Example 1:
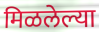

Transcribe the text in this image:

मिळलेल्या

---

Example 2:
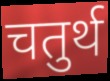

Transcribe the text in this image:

चतुर्थ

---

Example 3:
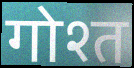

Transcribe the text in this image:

गोश्त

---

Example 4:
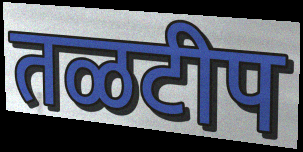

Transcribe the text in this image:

तळटीप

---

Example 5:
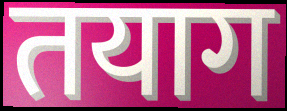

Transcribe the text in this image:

तयाग